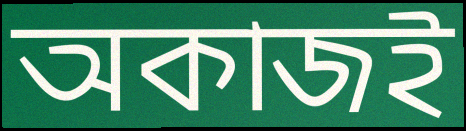
অকাজই